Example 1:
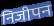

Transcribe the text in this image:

निजीपन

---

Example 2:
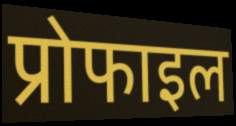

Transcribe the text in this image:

प्रोफाइल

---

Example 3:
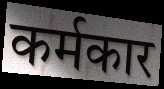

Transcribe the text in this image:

कर्मकार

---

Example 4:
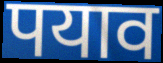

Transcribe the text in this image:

पयाव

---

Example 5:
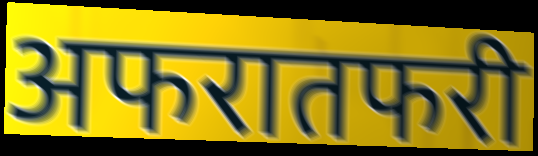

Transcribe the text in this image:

अफरातफरी